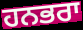
ਹਨਭਰਾ